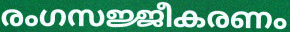
രംഗസജ്ജീകരണം